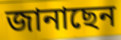
জানাছেন